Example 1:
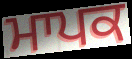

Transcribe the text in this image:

ਮਾਪਕ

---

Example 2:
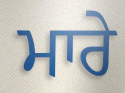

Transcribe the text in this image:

ਮਾਰੇ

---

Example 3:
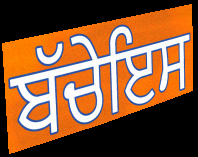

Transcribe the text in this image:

ਬੱਚੇਇਸ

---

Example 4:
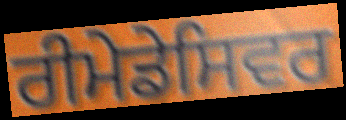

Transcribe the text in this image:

ਰੀਮੇਡੇਸਿਵਰ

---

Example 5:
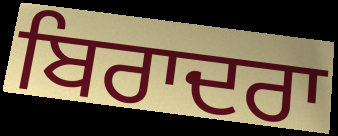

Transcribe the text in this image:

ਬਿਰਾਦਰਾ